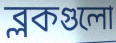
ব্লকগুলো